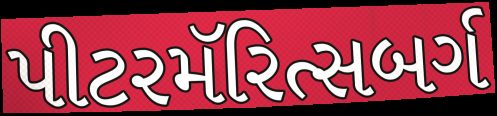
પીટરમૅરિત્સબર્ગ